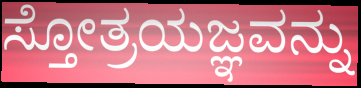
ಸ್ತೋತ್ರಯಜ್ಞವನ್ನು